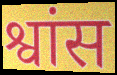
श्वांस